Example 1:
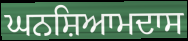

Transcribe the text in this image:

ਘਨਸ਼ਿਆਮਦਾਸ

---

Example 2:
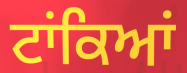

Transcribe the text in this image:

ਟਾਂਕਿਆਂ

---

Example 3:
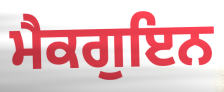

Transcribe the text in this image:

ਮੈਕਗੁਇਨ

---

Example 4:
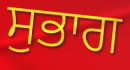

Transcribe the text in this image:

ਸੁਭਾਗ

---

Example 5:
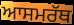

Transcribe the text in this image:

ਆਸਮਰੱਥ